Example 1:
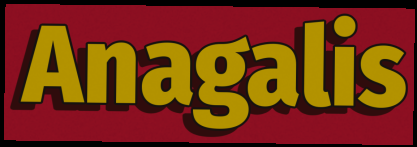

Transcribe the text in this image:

Anagalis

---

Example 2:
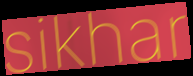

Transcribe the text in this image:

sikhar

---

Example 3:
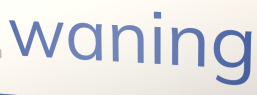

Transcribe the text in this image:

waning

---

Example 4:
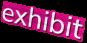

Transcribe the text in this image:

exhibit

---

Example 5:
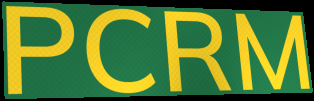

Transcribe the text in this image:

PCRM